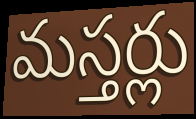
మస్తర్లు